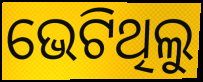
ଭେଟିଥିଲୁ